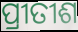
ପ୍ରୀତୀଶ